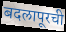
बदलापूरची